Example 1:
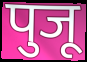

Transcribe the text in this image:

पुजू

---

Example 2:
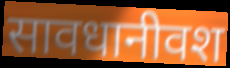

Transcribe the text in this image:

सावधानीवश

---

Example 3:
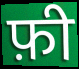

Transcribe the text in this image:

फ़ी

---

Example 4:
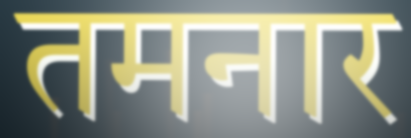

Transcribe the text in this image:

तमनार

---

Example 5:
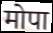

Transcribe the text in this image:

मोपा